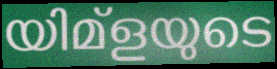
യിമ്ളയുടെ